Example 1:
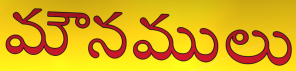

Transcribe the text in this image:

మౌనములు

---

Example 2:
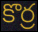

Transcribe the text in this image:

కొర్ర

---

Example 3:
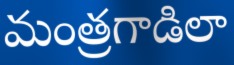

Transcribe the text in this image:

మంత్రగాడిలా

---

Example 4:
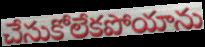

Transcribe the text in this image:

చేసుకోలేకపోయాను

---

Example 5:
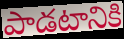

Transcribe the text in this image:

పాడటానికి